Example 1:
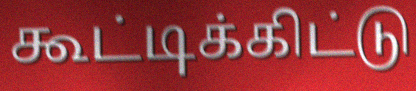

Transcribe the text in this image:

கூட்டிக்கிட்டு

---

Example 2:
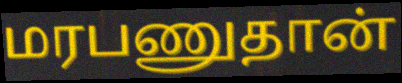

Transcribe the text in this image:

மரபணுதான்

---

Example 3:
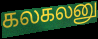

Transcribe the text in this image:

கலகலனு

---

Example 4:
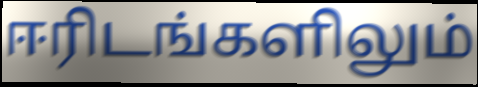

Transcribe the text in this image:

ஈரிடங்களிலும்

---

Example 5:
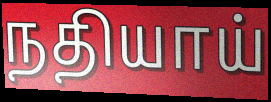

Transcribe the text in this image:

நதியாய்